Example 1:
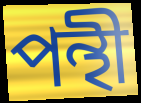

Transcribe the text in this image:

পন্থী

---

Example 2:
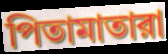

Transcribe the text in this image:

পিতামাতারা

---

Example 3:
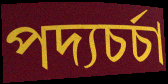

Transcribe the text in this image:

পদ্যচর্চা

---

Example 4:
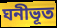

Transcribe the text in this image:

ঘনীভূত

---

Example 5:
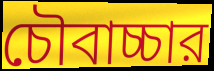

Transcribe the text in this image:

চৌবাচ্চার